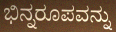
ಭಿನ್ನರೂಪವನ್ನು